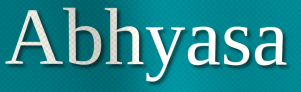
Abhyasa